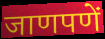
जाणपणें